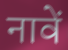
नावें